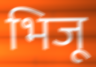
भिजू